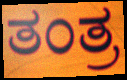
ತಂತ್ರ